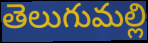
తెలుగుమల్లి